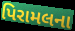
પિરામલના